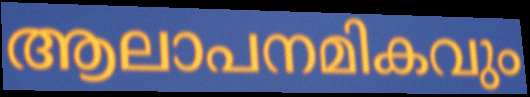
ആലാപനമികവും